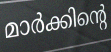
മാർക്കിന്റെ